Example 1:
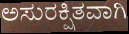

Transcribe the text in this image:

ಅಸುರಕ್ಷಿತವಾಗಿ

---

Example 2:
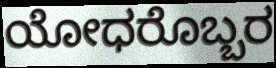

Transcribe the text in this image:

ಯೋಧರೊಬ್ಬರ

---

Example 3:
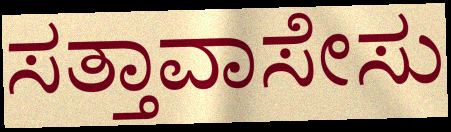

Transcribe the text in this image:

ಸತ್ತಾವಾಸೇಸು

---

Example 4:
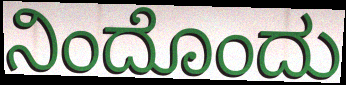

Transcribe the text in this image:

ನಿಂದೊಂದು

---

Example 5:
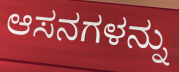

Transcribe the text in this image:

ಆಸನಗಳನ್ನು